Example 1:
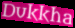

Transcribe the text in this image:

Dukkha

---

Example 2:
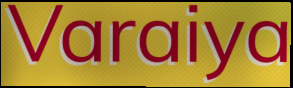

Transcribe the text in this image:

Varaiya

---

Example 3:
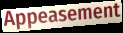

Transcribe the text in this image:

Appeasement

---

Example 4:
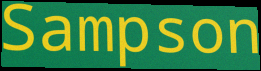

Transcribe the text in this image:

Sampson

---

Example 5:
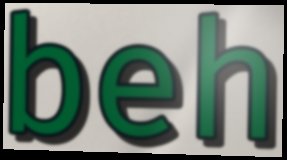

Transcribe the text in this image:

beh